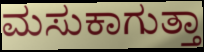
ಮಸುಕಾಗುತ್ತಾ